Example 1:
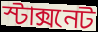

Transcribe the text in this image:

স্টাক্সনেট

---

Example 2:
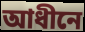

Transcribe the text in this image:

আধীনে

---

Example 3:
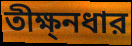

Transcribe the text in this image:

তীক্ষ্নধার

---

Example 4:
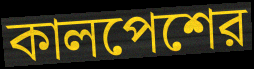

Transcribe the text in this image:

কালপেশের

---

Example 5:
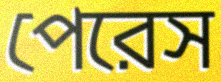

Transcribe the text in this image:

পেরেস